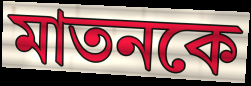
মাতনকে